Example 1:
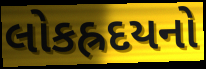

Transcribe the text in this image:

લોકહ્રદયનો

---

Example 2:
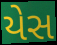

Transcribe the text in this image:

યેસ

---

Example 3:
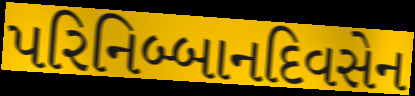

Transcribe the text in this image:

પરિનિબ્બાનદિવસેન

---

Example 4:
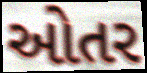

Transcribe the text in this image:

ઓતર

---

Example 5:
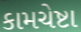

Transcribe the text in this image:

કામચેષ્ટા